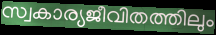
സ്വകാര്യജീവിതത്തിലും